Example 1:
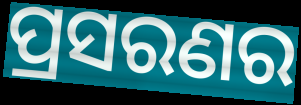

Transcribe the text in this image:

ପ୍ରସରଣର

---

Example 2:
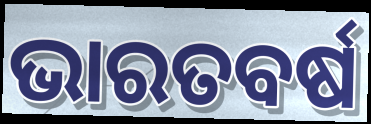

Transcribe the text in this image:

ଭାରତବର୍ଷ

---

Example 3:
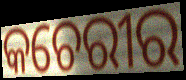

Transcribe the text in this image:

କଚେରୀର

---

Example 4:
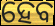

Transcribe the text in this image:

ହେବ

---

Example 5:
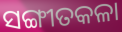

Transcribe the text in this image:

ସଙ୍ଗୀତକଳା